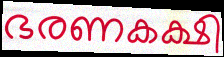
ഭരണകക്ഷി